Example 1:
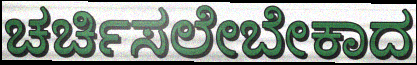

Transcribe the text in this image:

ಚರ್ಚಿಸಲೇಬೇಕಾದ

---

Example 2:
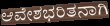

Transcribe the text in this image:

ಆವೇಶಭರಿತನಾಗಿ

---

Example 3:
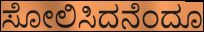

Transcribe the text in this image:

ಸೋಲಿಸಿದನೆಂದೂ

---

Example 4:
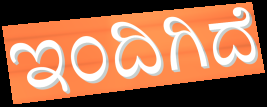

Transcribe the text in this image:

ಇಂದಿಗಿದೆ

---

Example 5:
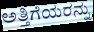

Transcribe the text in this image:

ಅತ್ತಿಗೆಯರನ್ನು